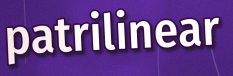
patrilinear